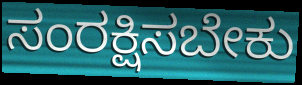
ಸಂರಕ್ಷಿಸಬೇಕು